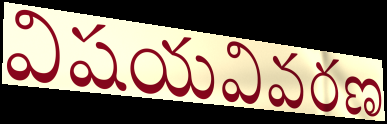
విషయవివరణ